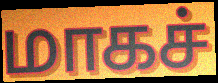
மாகச்